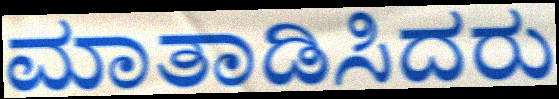
ಮಾತಾಡಿಸಿದರು